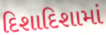
દિશાદિશામાં